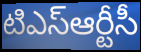
టిఎస్ఆర్టీసీ